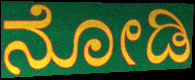
ನೋಡಿ